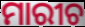
ମାରୀଚ